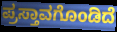
ಪ್ರಸ್ತಾವಗೊಂಡಿದೆ